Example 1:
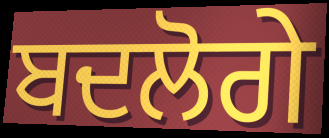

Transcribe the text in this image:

ਬਦਲੋਗੇ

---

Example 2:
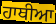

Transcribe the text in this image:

ਹਾਥੀਆ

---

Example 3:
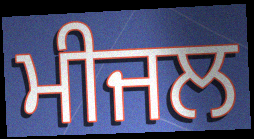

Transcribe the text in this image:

ਮੀਜਲ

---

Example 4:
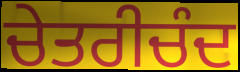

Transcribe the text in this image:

ਚੇਤਰੀਚੰਦ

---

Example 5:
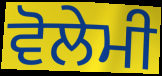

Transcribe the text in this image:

ਵੋਲੇਮੀ